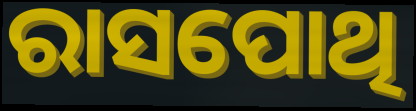
ରାସପୋଥି